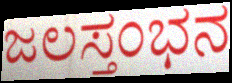
ಜಲಸ್ತಂಭನ